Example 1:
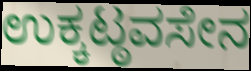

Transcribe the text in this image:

ಉಕ್ಕಟ್ಠವಸೇನ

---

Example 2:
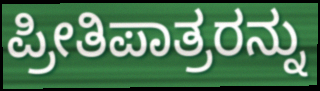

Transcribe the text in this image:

ಪ್ರೀತಿಪಾತ್ರರನ್ನು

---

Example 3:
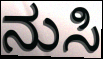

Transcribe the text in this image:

ನುಸಿ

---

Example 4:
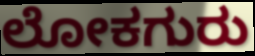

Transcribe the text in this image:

ಲೋಕಗುರು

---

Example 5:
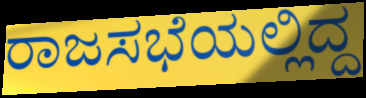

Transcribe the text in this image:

ರಾಜಸಭೆಯಲ್ಲಿದ್ದ